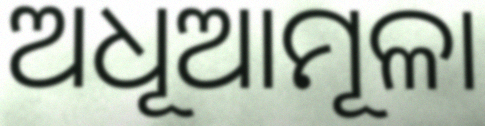
ଅଧୂଆମୂଳା